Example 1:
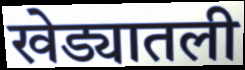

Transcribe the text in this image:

खेड्यातली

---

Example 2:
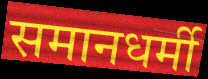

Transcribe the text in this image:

समानधर्मी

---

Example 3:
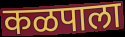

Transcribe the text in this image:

कळपाला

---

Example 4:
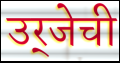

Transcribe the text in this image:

उर्जेची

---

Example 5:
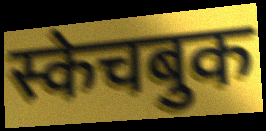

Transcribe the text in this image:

स्केचबुक